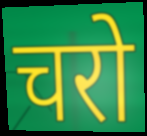
चरो